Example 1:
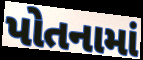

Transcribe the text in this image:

પોતનામાં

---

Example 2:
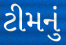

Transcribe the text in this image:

ટીમનું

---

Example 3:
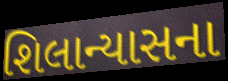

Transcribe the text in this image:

શિલાન્યાસના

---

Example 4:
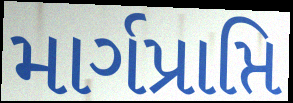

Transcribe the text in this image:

માર્ગપ્રાપ્તિ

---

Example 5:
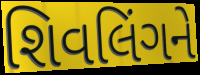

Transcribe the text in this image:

શિવલિંગને